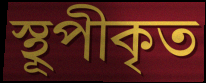
স্থূপীকৃত